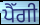
ਪੈੱਗੀ